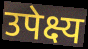
उपेक्ष्य